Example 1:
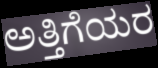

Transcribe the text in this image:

ಅತ್ತಿಗೆಯರ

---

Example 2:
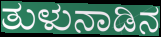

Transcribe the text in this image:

ತುಳುನಾಡಿನ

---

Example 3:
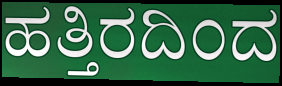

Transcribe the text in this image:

ಹತ್ತಿರದಿಂದ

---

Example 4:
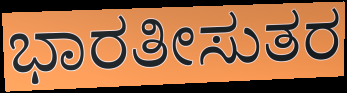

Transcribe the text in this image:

ಭಾರತೀಸುತರ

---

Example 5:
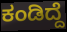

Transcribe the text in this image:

ಕಂಡಿದ್ದೆ